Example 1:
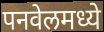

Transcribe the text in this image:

पनवेलमध्ये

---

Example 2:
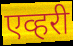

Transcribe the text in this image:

एव्हरी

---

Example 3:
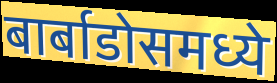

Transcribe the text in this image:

बार्बाडोसमध्ये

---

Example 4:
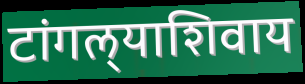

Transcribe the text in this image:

टांगल्याशिवाय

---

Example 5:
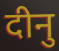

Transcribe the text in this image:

दीनु